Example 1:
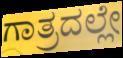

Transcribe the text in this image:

ಗಾತ್ರದಲ್ಲೇ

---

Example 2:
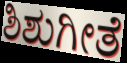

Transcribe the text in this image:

ಶಿಶುಗೀತೆ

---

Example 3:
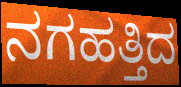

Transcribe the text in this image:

ನಗಹತ್ತಿದ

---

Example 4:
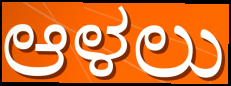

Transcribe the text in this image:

ಆಳಲು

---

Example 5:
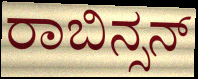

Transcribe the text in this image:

ರಾಬಿನ್ಸನ್